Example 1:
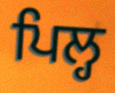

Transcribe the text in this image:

ਪਿਲ੍ਹ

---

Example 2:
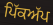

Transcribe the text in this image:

ਪਿੱਕਅੱਪ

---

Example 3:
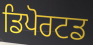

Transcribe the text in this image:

ਡਿਪੋਰਟਡ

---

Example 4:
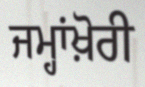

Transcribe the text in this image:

ਜਮ੍ਹਾਂਖ਼ੋਰੀ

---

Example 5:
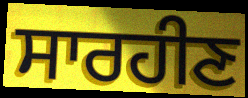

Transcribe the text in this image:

ਸਾਰਹੀਣ